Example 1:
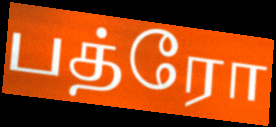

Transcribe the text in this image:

பத்ரோ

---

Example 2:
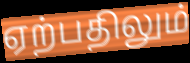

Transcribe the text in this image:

ஏற்பதிலும்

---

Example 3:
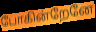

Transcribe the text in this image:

போகின்றேனே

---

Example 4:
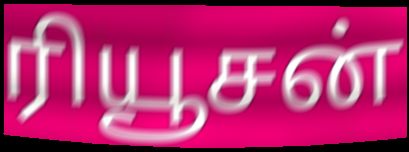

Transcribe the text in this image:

ரியூசன்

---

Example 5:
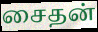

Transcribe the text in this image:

சைதன்